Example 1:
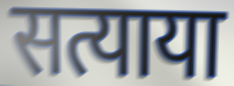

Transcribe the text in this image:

सत्याया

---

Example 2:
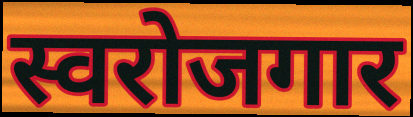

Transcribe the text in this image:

स्वरोजगार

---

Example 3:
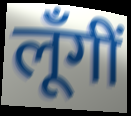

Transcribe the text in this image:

लूँगीं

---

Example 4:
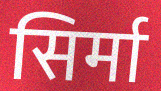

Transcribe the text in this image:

सिर्मा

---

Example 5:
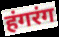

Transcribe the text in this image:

हंगरंग